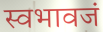
स्वभावजं